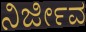
ನಿರ್ಜೀವ